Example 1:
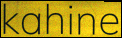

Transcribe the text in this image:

kahine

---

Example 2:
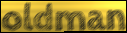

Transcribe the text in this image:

oldman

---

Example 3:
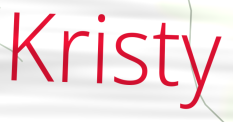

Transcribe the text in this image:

Kristy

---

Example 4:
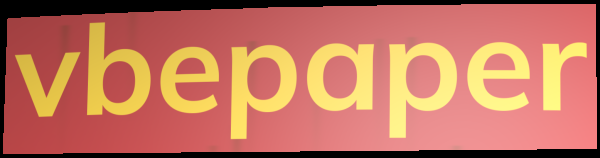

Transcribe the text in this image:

vbepaper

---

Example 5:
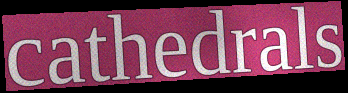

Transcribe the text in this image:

cathedrals